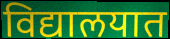
विद्यालयात